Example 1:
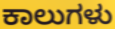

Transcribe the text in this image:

ಕಾಲುಗಳು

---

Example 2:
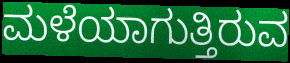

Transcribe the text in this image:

ಮಳೆಯಾಗುತ್ತಿರುವ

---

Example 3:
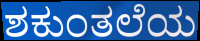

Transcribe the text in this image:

ಶಕುಂತಲೆಯ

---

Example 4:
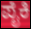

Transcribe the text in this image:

ಪೈಕಿ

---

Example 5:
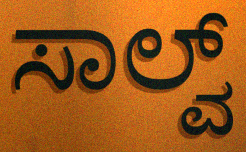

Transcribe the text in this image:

ಸಾಲ್ವ್